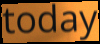
today